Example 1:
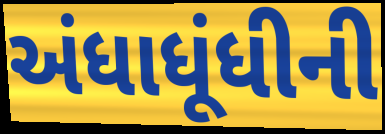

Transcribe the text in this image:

અંધાધૂંધીની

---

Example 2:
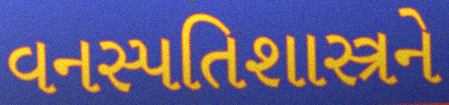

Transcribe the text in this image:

વનસ્પતિશાસ્ત્રને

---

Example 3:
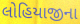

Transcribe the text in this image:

લોહિયાજીના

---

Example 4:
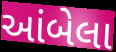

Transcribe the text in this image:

આંબેલા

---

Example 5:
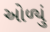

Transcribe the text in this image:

ઓળ્યું